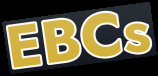
EBCs